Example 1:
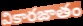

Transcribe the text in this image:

వికారజాతం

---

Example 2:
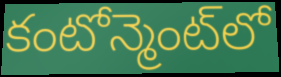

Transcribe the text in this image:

కంటోన్మెంట్‌లో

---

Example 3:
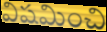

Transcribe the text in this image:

విషమించి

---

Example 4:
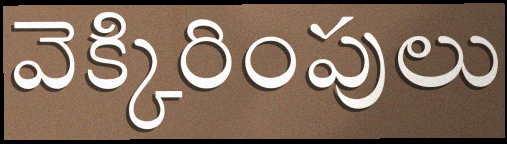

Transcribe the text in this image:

వెక్కిరింపులు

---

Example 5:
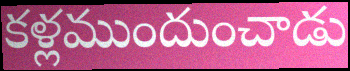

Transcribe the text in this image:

కళ్లముందుంచాడు